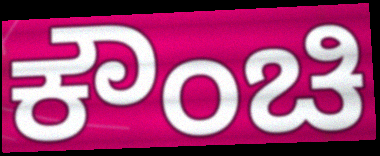
ಕೌಂಚಿ